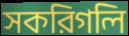
সকরিগলি